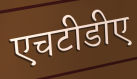
एचटीडीए